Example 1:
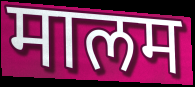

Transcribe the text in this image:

मालम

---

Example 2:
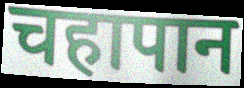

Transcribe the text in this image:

चहापान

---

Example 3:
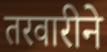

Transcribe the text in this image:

तरवारीने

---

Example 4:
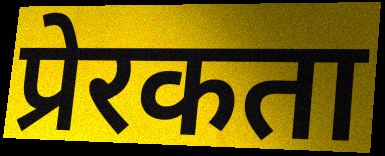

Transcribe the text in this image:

प्रेरकता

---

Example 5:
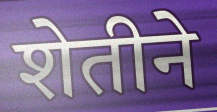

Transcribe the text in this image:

शेतीने